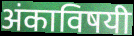
अंकाविषयी